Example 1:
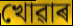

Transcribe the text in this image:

খোৱাৰ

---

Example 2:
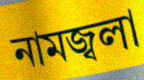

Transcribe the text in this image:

নামজ্বলা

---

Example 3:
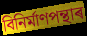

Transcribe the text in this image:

বিনিৰ্মাণপন্থাৰ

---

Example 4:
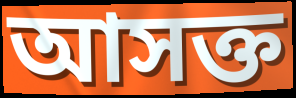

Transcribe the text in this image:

আসক্ত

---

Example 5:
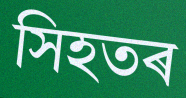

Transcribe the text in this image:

সিহতৰ